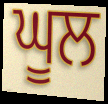
ਘੂਲ